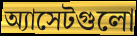
অ্যাসেটগুলো